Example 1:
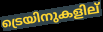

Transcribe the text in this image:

ട്രെയിനുകളില്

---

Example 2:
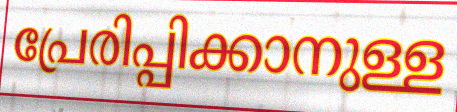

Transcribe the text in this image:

പ്രേരിപ്പിക്കാനുള്ള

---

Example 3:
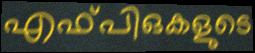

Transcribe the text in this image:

എഫ്പിഒകളുടെ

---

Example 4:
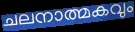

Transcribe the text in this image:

ചലനാത്മകവും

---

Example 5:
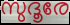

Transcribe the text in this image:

സുദൂരേ